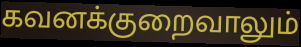
கவனக்குறைவாலும்